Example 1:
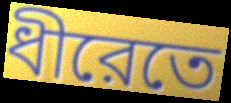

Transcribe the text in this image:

ধীরেতে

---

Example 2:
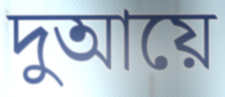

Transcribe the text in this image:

দুআয়ে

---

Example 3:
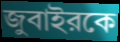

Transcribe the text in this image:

জুবাইরকে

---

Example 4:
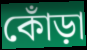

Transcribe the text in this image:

কোঁড়া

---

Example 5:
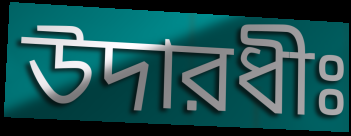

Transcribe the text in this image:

উদারধীঃ